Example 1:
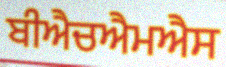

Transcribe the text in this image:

ਬੀਐਚਐਮਐਸ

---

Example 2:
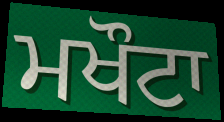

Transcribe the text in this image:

ਮਖੌਟਾ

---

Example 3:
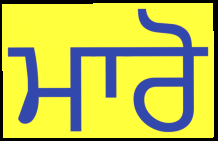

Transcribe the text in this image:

ਮਾਰੋ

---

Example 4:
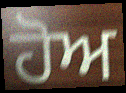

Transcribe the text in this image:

ਹੋਅ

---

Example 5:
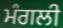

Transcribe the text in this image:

ਮੰਗਲੀ